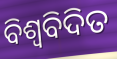
ବିଶ୍ବବିଦିତ